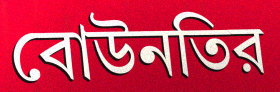
বোউনতির